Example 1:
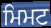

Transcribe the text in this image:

ਮਿਮਟ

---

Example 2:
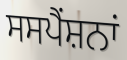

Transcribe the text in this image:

ਸਸਪੈਂਸ਼ਨਾਂ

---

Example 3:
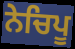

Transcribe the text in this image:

ਨੇਚਿਪੂ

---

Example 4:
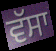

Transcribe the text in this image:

ਵੱਸਾ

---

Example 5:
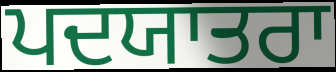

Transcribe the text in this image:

ਪਦਯਾਤਰਾ